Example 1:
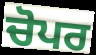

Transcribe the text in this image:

ਚੋਪਰ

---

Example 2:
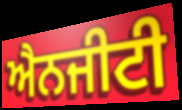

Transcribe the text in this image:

ਐਨਜੀਟੀ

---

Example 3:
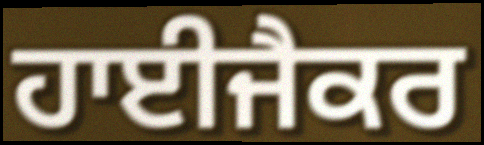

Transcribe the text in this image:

ਹਾਈਜੈਕਰ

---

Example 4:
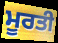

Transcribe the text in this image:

ਮੂਰਤੀ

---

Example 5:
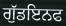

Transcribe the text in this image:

ਗੁੱਡਇਨਫ